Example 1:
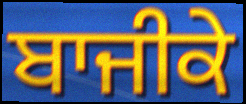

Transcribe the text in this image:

ਬਾਜੀਕੇ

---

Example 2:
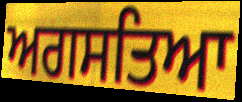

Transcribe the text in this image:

ਅਗਸਤਿਆ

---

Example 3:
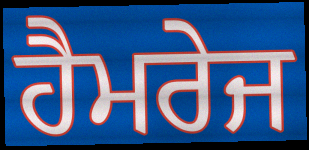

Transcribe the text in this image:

ਹੈਮਰੇਜ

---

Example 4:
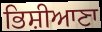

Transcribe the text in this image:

ਭਿਸ਼ੀਆਣਾ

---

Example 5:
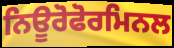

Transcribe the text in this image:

ਨਿਊਰੋਫੋਰਮਿਨਲ